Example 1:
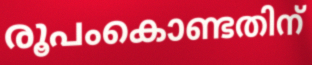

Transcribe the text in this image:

രൂപംകൊണ്ടതിന്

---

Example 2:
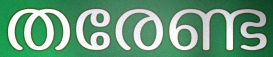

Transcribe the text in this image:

തരേണ്ട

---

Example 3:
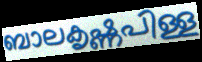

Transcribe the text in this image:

ബാലകൃഷ്ണപിള്ള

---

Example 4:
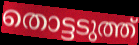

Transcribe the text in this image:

തൊട്ടടുത്ത്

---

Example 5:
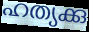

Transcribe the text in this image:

ഹത്യക്കു